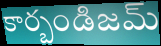
కార్బండిజమ్